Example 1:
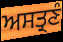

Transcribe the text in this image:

ਅਸਤ੍ਰਣੰ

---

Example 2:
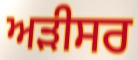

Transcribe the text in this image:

ਅੜੀਸਰ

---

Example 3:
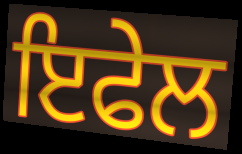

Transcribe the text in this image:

ਇਫੇਲ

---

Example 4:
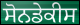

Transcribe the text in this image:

ਸੋਨਡੇਕੀਸ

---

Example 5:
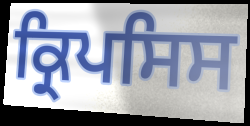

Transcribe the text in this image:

ਕ੍ਰਿਪਸਿਸ